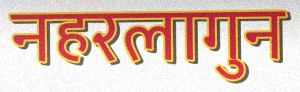
नहरलागुन